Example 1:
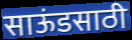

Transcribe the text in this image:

साऊंडसाठी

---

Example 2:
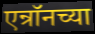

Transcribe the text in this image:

एन्रॉनच्या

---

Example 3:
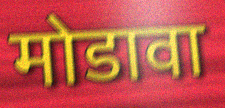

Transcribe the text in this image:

मोडावा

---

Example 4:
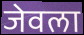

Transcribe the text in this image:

जेवला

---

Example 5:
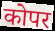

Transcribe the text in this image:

कोपर